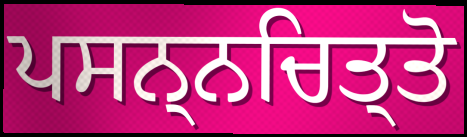
ਪਸਨ੍ਨਚਿਤ੍ਤੋ